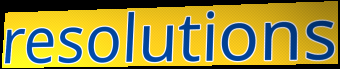
resolutions